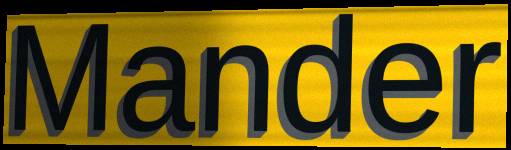
Mander